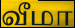
வீமா